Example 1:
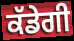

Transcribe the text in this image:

ਕੱਡੇਗੀ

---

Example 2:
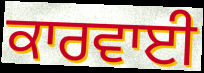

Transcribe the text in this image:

ਕਾਰਵਾਈ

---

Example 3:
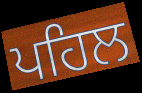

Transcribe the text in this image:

ਪਹਿਲ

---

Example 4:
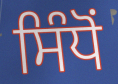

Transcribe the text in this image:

ਸਿੰਧੋਂ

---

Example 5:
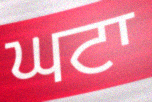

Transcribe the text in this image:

ਘਟਾ